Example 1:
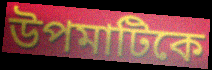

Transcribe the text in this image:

উপমাটিকে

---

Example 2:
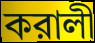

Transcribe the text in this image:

করালী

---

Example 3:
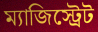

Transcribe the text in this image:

ম্যাজিস্ট্রেট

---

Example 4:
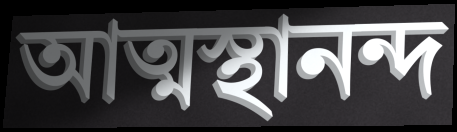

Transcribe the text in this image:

আত্মস্থানন্দ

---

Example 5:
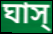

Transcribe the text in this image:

ঘাস্